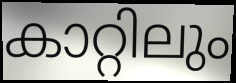
കാറ്റിലും